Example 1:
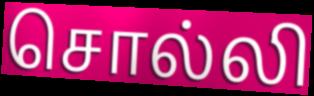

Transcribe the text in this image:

சொல்லி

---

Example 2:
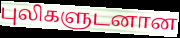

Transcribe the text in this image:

புலிகளுடனான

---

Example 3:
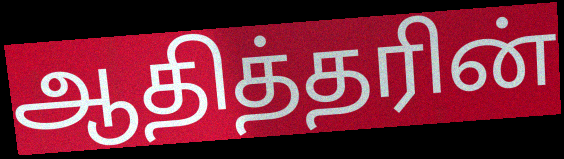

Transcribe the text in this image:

ஆதித்தரின்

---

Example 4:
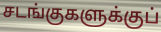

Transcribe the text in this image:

சடங்குகளுக்குப்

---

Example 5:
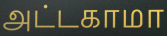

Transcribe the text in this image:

அட்டகாமா